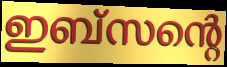
ഇബ്സന്റെ